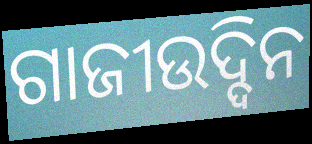
ଗାଜୀଉଦ୍ଦିନ